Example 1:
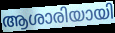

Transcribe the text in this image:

ആശാരിയായി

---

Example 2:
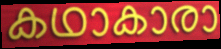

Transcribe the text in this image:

കഥാകാരാ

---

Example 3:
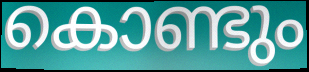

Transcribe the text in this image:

കൊണ്ടും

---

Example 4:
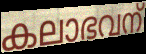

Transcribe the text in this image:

കലാഭവന്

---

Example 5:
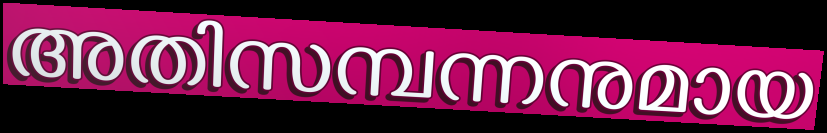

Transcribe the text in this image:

അതിസമ്പന്നനുമായ